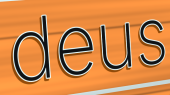
deus